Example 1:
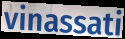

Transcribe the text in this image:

vinassati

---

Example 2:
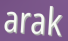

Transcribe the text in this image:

arak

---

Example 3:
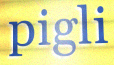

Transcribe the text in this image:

pigli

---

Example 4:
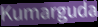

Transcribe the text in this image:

Kumarguda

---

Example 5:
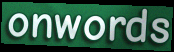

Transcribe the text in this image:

onwords